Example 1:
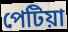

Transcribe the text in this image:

পেটিয়া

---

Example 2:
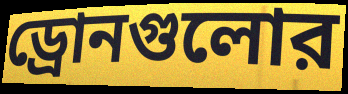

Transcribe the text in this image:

ড্রোনগুলোর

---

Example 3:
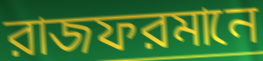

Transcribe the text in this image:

রাজফরমানে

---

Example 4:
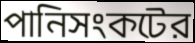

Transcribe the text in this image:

পানিসংকটের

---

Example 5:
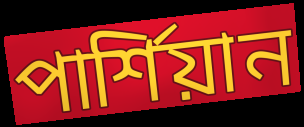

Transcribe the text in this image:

পার্শিয়ান